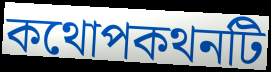
কথোপকথনটি